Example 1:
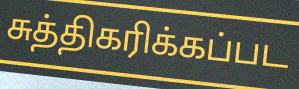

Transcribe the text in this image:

சுத்திகரிக்கப்பட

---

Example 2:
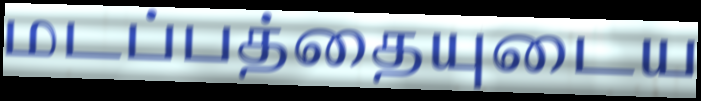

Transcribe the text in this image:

மடப்பத்தையுடைய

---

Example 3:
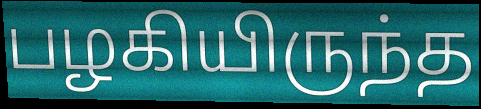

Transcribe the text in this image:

பழகியிருந்த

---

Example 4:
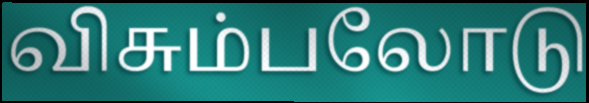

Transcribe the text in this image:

விசும்பலோடு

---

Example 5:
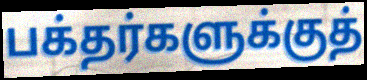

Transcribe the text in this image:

பக்தர்களுக்குத்